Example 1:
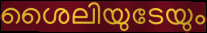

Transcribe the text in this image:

ശൈലിയുടേയും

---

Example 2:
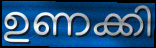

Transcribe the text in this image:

ഉണക്കി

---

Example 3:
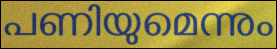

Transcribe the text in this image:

പണിയുമെന്നും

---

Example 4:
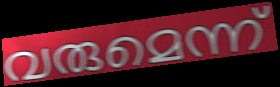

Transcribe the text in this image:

വരുമെന്ന്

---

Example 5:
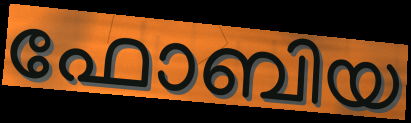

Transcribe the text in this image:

ഫോബിയ